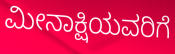
ಮೀನಾಕ್ಷಿಯವರಿಗೆ